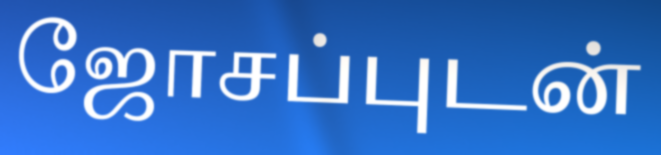
ஜோசப்புடன்